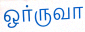
ஒர்ருவா